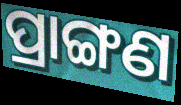
ପ୍ରାଙ୍ଗଣ